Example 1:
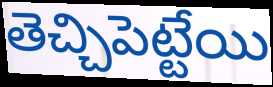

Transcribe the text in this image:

తెచ్చిపెట్టేయి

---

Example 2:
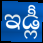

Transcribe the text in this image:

ఇడ్లీ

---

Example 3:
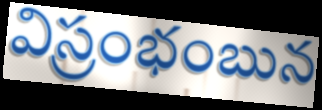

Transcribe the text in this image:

విస్రంభంబున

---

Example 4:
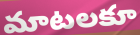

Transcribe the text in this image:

మాటలకూ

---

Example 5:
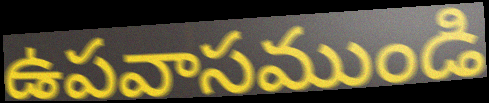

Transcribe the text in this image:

ఉపవాసముండి